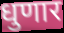
धुणार